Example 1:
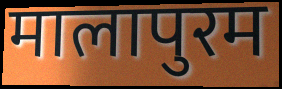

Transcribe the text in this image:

मालापुरम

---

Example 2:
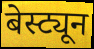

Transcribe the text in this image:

बेस्ट्यून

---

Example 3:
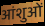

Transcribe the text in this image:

आंशुओं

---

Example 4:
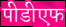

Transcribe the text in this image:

पीडीएफ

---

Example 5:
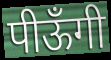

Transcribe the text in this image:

पीऊँगी